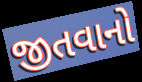
જીતવાનો